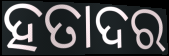
ହତାଦର